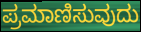
ಪ್ರಮಾಣಿಸುವುದು